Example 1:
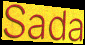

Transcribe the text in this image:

Sada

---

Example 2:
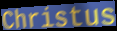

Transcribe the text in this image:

Christus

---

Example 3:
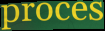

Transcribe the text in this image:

proces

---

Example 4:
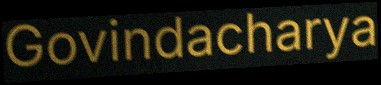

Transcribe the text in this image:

Govindacharya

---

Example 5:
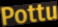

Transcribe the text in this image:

Pottu